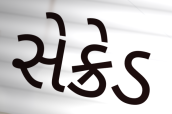
સેક્રેડ